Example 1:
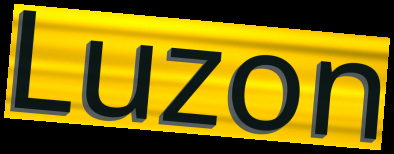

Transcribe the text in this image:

Luzon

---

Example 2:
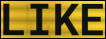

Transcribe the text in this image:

LIKE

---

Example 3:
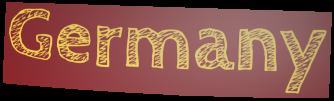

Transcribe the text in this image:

Germany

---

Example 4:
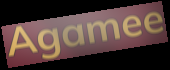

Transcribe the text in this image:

Agamee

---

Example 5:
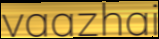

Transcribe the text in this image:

vaazhai